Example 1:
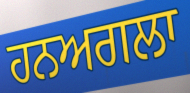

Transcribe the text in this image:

ਹਨਅਗਲਾ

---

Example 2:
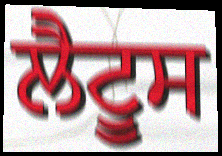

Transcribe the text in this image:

ਲੈਟੂਸ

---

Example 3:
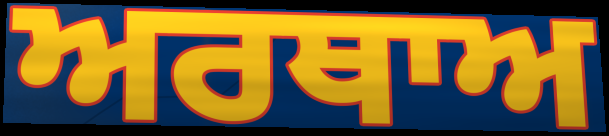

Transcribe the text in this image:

ਅਰਥਾਅ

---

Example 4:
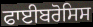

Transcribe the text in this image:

ਫਾਈਬਰੋਸਿਸ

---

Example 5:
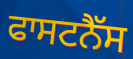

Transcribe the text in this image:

ਫਾਸਟਨੈੱਸ